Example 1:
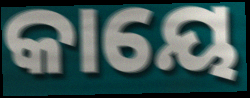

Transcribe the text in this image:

କାୟେ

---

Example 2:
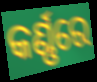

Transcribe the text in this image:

କର୍ଣ୍ଣରେ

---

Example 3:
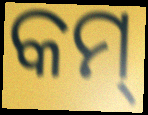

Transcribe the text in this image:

କମ୍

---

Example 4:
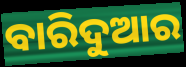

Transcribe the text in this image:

ବାରିଦୁଆର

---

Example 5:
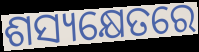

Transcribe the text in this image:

ଶସ୍ୟକ୍ଷେତରେ